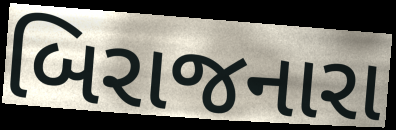
બિરાજનારા